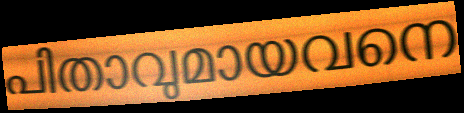
പിതാവുമായവനെ